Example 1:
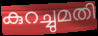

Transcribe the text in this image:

കുറച്ചുമതി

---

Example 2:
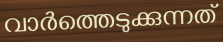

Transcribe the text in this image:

വാർത്തെടുക്കുന്നത്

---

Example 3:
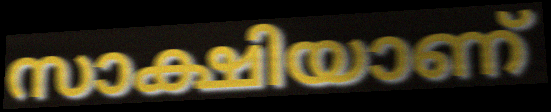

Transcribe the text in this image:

സാക്ഷിയാണ്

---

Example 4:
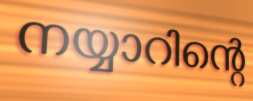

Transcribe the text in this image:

നയ്യാറിന്റെ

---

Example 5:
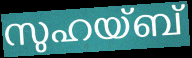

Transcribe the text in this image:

സുഹയ്ബ്